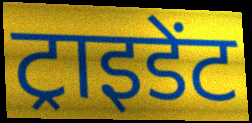
ट्राइडेंट